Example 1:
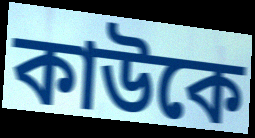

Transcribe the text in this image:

কাউকে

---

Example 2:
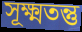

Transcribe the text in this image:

সূক্ষ্মতন্তু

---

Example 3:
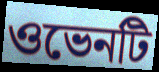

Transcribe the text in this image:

ওভেনটি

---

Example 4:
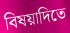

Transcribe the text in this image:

বিষয়াদিতে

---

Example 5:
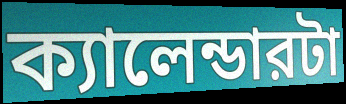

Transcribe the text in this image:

ক্যালেন্ডারটা